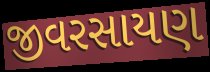
જીવરસાયણ